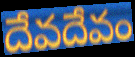
దేవదేవం